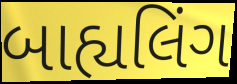
બાહ્યલિંગ